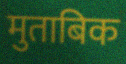
मुताबिक